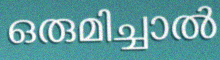
ഒരുമിച്ചാൽ